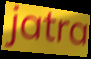
jatra